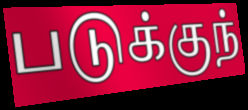
படுக்குந்